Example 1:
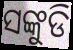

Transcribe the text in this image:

ସଙ୍କୁଡି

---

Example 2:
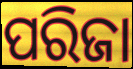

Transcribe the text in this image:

ପରିଜା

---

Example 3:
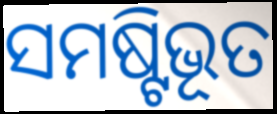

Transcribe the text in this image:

ସମଷ୍ଟିଭୂତ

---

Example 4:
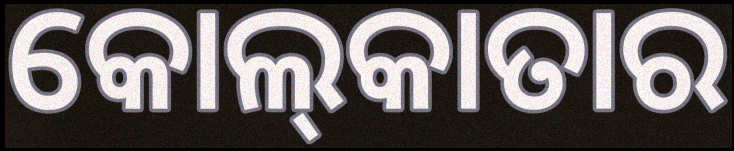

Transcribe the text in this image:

କୋଲ୍‌କାତାର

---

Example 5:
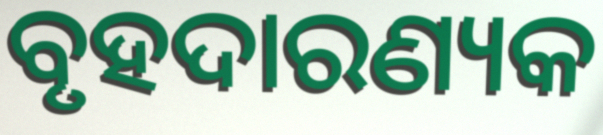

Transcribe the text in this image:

ବୃହଦାରଣ୍ୟକ